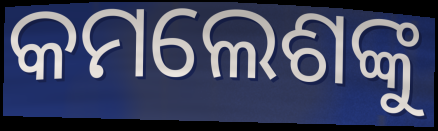
କମଲେଶଙ୍କୁ